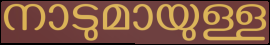
നാടുമായുള്ള